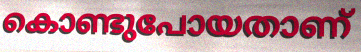
കൊണ്ടുപോയതാണ്